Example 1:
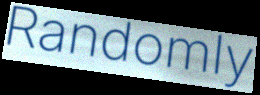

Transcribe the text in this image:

Randomly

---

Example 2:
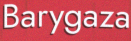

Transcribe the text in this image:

Barygaza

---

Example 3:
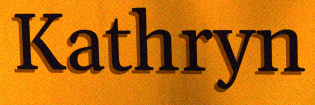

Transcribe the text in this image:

Kathryn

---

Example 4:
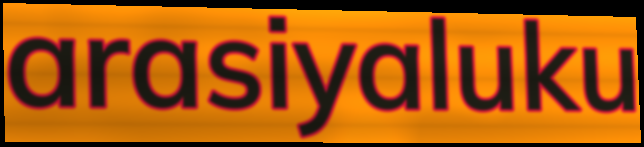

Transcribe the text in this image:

arasiyaluku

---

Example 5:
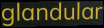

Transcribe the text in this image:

glandular